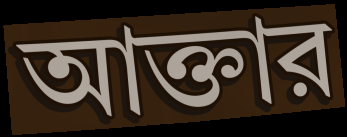
আক্তার